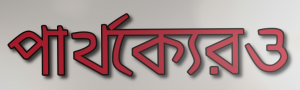
পার্থক্যেরও